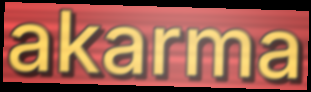
akarma